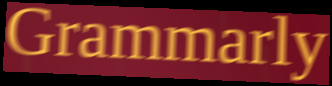
Grammarly